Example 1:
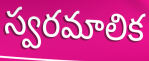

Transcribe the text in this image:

స్వరమాలిక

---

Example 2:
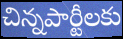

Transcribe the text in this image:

చిన్నపార్టీలకు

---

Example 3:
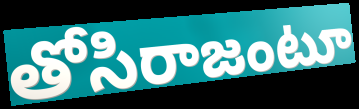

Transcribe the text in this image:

తోసిరాజంటూ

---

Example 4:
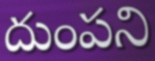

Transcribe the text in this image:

దుంపని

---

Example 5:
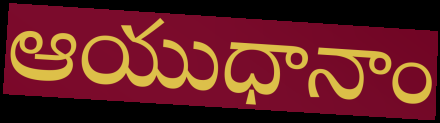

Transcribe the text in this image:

ఆయుధానాం